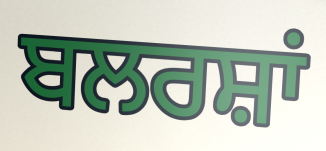
ਬਲਰਸ਼ਾਂ